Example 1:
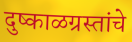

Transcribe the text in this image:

दुष्काळग्रस्तांचे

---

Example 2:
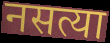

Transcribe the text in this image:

नसत्या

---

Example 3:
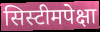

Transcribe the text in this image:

सिस्टीमपेक्षा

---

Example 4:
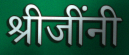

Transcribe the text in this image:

श्रीजींनी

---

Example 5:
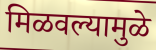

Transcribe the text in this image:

मिळवल्यामुळे